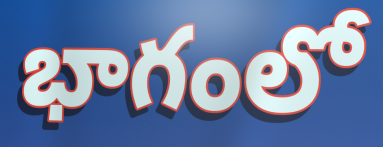
భాగంలో